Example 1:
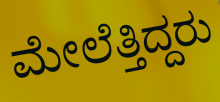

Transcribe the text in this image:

ಮೇಲೆತ್ತಿದ್ದರು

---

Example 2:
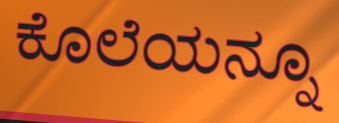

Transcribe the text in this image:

ಕೊಲೆಯನ್ನೂ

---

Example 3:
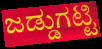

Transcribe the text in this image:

ಜಡ್ಡುಗಟ್ಟಿ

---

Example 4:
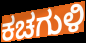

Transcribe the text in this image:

ಕಚಗುಳಿ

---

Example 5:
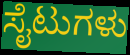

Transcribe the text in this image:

ಸೈಟುಗಳು